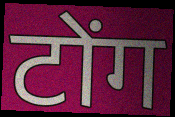
टोंग